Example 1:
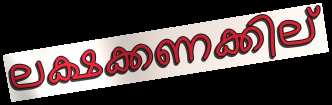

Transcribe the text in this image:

ലക്ഷക്കണക്കില്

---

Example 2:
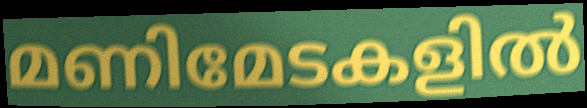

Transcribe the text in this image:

മണിമേടകളിൽ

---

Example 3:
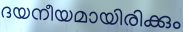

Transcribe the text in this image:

ദയനീയമായിരിക്കും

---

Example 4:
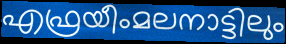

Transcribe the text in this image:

എഫ്രയീംമലനാട്ടിലും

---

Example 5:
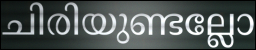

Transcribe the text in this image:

ചിരിയുണ്ടല്ലോ